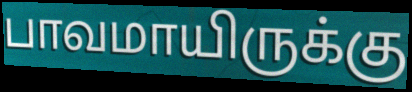
பாவமாயிருக்கு